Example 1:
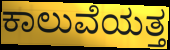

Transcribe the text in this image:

ಕಾಲುವೆಯತ್ತ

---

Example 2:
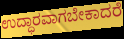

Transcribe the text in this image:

ಉದ್ಧಾರವಾಗಬೇಕಾದರೆ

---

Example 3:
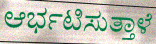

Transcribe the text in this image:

ಆರ್ಭಟಿಸುತ್ತಾಳೆ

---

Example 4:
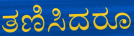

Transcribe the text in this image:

ತಣಿಸಿದರೂ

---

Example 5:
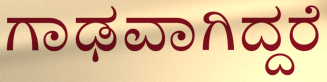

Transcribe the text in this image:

ಗಾಢವಾಗಿದ್ದರೆ